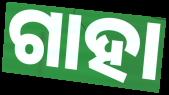
ଗାହା